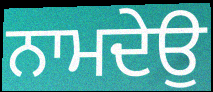
ਨਾਮਦੇਉ